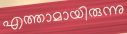
എത്താമായിരുന്നു